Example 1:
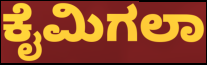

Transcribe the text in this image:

ಕೈಮಿಗಲಾ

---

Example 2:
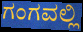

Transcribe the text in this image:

ಗಂಗವಲ್ಲಿ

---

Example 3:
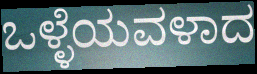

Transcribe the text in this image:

ಒಳ್ಳೆಯವಳಾದ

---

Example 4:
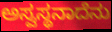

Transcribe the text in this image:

ಅಸ್ವಸ್ಥನಾದೆನು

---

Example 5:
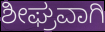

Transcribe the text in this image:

ಶೀಘ್ರವಾಗಿ